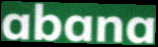
abana